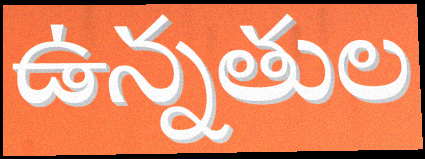
ఉన్నతుల